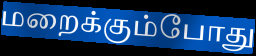
மறைக்கும்போது